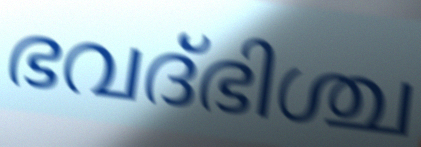
ഭവദ്ഭിശ്ച